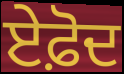
ਏਫ਼ੋਦ